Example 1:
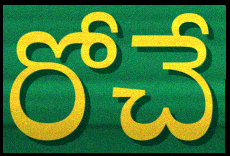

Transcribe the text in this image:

రోచే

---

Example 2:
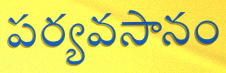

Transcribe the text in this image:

పర్యవసానం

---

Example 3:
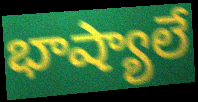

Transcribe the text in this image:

భాష్యాలే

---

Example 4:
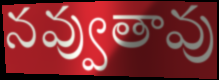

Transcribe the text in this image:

నవ్వుతావు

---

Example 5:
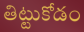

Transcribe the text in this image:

తిట్టుకోడం